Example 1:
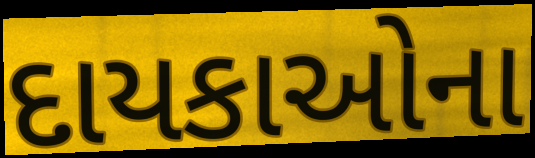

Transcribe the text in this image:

દાયકાઓના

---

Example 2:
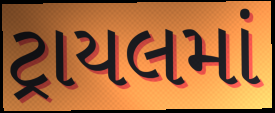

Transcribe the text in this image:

ટ્રાયલમાં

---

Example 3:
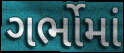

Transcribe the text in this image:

ગર્ભોમાં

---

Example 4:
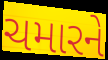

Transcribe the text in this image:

ચમારને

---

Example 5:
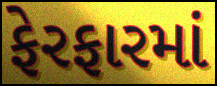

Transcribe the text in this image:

ફેરફારમાં